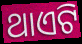
ଥାଏଟି